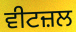
ਵੀਟਜ਼ਲ